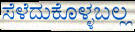
ಸೆಳೆದುಕೊಳ್ಳಬಲ್ಲ